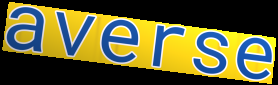
averse